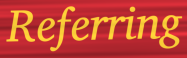
Referring